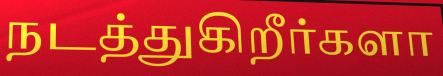
நடத்துகிறீர்களா